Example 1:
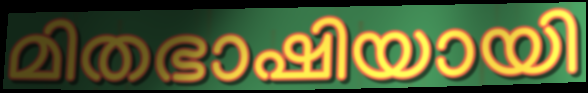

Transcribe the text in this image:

മിതഭാഷിയായി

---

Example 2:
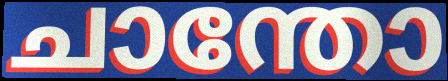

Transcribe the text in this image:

ചാന്തോ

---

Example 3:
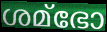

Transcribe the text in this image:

ശമ്ഭോ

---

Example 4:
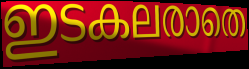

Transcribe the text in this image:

ഇടകലരാതെ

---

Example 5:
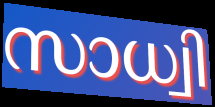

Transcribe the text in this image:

സാധ്വി